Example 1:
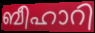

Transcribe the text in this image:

ബീഹാറി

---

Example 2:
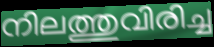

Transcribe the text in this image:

നിലത്തുവിരിച്ച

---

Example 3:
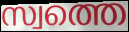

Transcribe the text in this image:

സ്വത്തെ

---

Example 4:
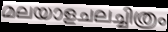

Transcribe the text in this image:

മലയാളചലച്ചിത്രം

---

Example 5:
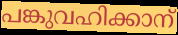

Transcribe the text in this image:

പങ്കുവഹിക്കാന്